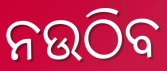
ନଉଠିବ